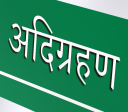
अदिग्रहण